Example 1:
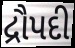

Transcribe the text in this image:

દ્રૌપદી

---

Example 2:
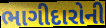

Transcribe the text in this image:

ભાગીદારોની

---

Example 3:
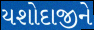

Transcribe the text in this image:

યશોદાજીને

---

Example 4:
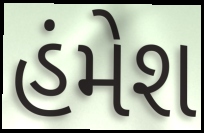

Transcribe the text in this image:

હંમેશ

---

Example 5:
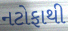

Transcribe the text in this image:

નટોફાથી